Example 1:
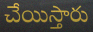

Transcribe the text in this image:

చేయిస్తారు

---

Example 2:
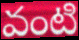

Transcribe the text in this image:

వంటి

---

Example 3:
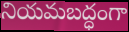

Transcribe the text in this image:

నియమబద్ధంగా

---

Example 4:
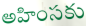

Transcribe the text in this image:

అహింసకు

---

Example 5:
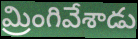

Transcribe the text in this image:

మ్రింగివేశాడు